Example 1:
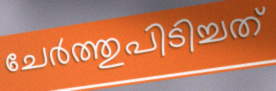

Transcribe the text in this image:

ചേർത്തുപിടിച്ചത്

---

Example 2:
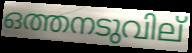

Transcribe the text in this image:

ഒത്തനടുവില്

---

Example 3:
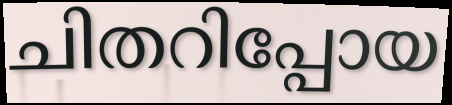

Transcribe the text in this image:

ചിതറിപ്പോയ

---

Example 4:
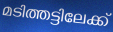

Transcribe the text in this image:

മടിത്തട്ടിലേക്ക്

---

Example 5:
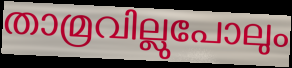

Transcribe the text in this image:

താമ്രവില്ലുപോലും